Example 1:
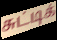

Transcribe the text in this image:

சுட்டிக்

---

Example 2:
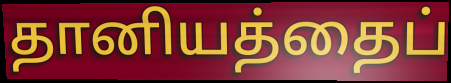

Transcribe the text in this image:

தானியத்தைப்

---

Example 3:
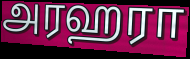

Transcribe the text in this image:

அரஹரா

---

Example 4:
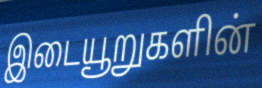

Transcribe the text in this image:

இடையூறுகளின்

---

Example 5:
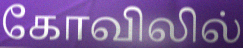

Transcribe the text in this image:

கோவிலில்